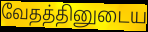
வேதத்தினுடைய